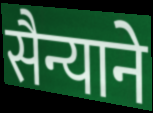
सैन्याने